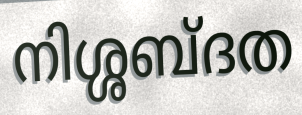
നിശ്ശബ്ദത